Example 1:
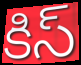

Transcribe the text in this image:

కిస్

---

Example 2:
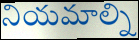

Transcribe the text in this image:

నియమాల్ని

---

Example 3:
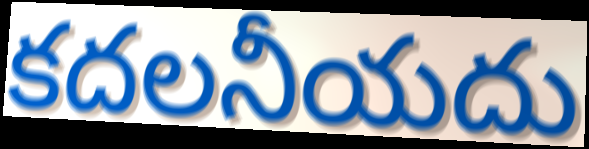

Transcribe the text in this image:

కదలనీయదు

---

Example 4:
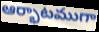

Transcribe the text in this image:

ఆర్భాటముగా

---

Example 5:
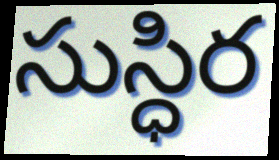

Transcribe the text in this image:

సుస్ధిర